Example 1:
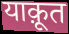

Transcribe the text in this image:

याक़ूत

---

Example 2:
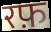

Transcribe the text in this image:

रफ़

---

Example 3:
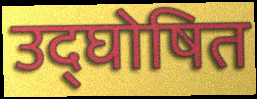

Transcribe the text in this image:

उद्घोषित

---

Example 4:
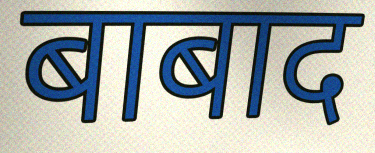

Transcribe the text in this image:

बाबाद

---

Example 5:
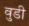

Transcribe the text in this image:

वुडी